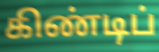
கிண்டிப்